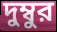
দুম্বুর